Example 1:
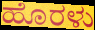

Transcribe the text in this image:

ಹೊರಳು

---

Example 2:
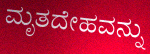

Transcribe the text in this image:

ಮೃತದೇಹವನ್ನು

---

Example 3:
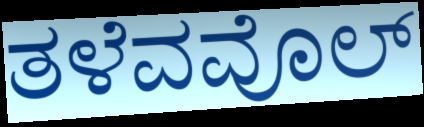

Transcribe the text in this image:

ತಳೆವವೊಲ್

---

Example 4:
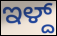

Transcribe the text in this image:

ಇಳ್ದ್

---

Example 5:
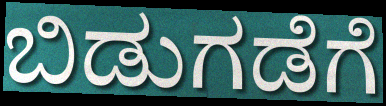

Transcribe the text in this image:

ಬಿಡುಗಡೆಗೆ